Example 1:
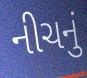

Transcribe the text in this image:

નીચનું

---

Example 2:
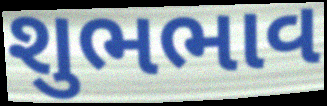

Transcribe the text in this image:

શુભભાવ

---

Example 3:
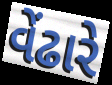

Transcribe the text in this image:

વેંઢારે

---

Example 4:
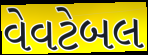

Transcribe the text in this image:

વેવટેબલ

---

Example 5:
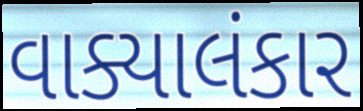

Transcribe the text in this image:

વાક્યાલંકાર